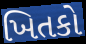
ખિતકો